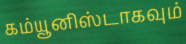
கம்யூனிஸ்டாகவும்